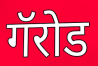
गॅरोड